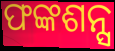
ଫଙ୍କଶନ୍ସ